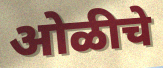
ओळीचे